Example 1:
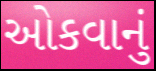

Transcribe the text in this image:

ઓકવાનું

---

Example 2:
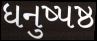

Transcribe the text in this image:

ધનુષ્પષ્ઠ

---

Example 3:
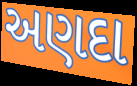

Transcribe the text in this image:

અણદા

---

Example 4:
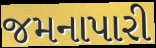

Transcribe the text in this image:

જમનાપારી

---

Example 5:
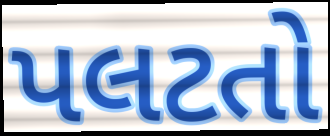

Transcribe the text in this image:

પલટતો